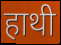
हाथी